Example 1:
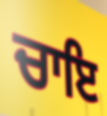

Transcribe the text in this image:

ਚਾਇ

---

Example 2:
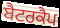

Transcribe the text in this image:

ਬੈਟਰਕੈਪ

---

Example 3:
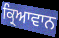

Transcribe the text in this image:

ਕ੍ਰਿਆਵਾਨ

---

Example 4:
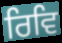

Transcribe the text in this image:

ਰਿਵਿ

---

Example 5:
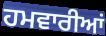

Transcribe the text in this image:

ਹਮਵਾਰੀਆਂ